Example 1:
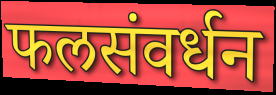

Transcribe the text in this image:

फलसंवर्धन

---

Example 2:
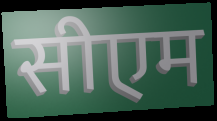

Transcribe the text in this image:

सीएम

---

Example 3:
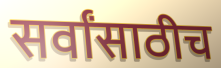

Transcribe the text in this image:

सर्वांसाठीच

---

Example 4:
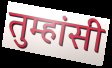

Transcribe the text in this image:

तुम्हांसी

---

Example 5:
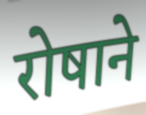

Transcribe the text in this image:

रोषाने